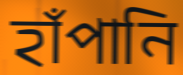
হাঁপানি